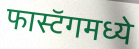
फास्टॅगमध्ये